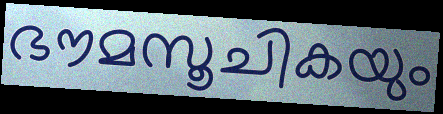
ഭൗമസൂചികയും